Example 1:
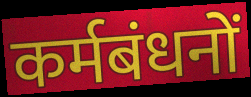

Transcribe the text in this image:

कर्मबंधनों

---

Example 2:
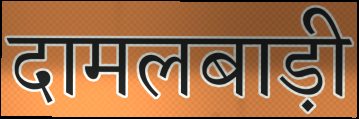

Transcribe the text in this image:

दामलबाड़ी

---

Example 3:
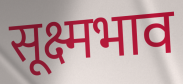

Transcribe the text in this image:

सूक्ष्मभाव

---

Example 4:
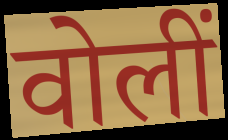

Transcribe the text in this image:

वोलीं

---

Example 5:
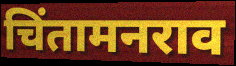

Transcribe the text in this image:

चिंतामनराव